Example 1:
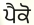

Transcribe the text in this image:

ਪੈਕੋ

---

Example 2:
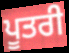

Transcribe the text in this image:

ਪੂਤਰੀ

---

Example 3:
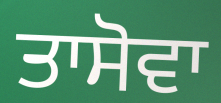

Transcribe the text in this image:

ਤਾਸੋਵਾ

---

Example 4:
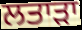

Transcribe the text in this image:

ਲਤਾੜਾ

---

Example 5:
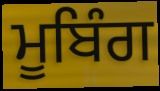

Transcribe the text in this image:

ਮੂਬਿੰਗ